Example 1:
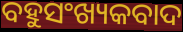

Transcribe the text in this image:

ବହୁସଂଖ୍ୟକବାଦ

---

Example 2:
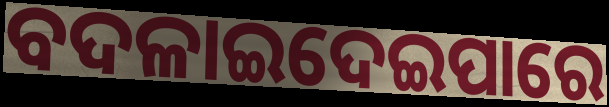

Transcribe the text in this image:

ବଦଳାଇଦେଇପାରେ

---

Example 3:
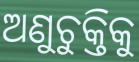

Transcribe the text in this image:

ଅଣୁଚୁକ୍ତିକୁ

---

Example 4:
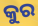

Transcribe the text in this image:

କୁର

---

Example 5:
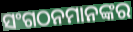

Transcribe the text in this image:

ସଂଗଠନମାନଙ୍କର